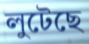
লুটেছে